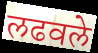
लढवले